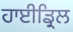
ਹਾਈਡ੍ਰਿਲ